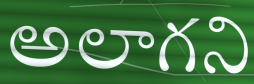
అలాగని